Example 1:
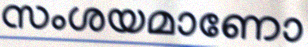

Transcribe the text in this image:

സംശയമാണോ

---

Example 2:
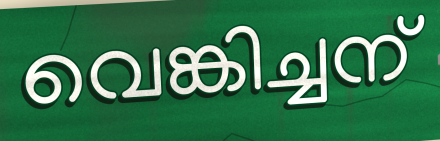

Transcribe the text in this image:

വെങ്കിച്ചന്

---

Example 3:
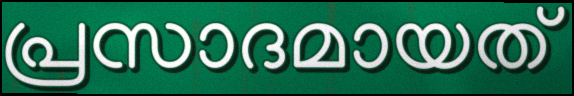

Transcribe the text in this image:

പ്രസാദമായത്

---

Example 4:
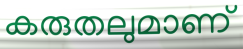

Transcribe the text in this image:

കരുതലുമാണ്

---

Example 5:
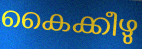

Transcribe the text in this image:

കൈക്കീഴു